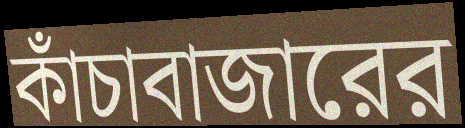
কাঁচাবাজারের